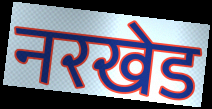
नरखेड